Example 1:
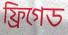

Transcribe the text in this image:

ফ্রিগেড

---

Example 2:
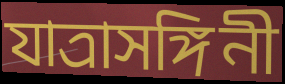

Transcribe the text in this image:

যাত্রাসঙ্গিনী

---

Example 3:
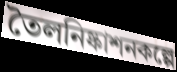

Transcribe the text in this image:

তৈলনিষ্কাশনকল্পে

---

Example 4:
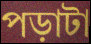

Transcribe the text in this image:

পড়াটা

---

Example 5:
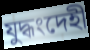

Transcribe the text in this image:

যুদ্ধংদেহী